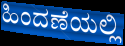
ಹಿಂದಣೆಯಲ್ಲಿ